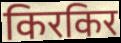
किरकिर